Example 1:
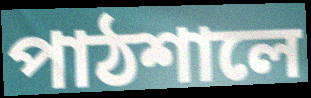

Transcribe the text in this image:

পাঠশালে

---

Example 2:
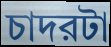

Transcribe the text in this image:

চাদরটা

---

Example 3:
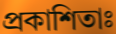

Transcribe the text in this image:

প্রকাশিতাঃ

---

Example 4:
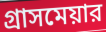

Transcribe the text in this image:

গ্রাসমেয়ার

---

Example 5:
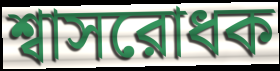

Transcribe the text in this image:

শ্বাসরোধক